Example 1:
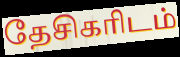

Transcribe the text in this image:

தேசிகரிடம்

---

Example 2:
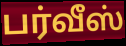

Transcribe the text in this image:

பர்வீஸ்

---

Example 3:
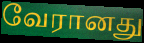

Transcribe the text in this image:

வேரானது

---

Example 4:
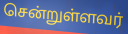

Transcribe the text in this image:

சென்றுள்ளவர்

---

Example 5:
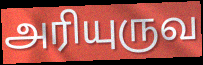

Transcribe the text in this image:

அரியுருவ